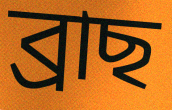
ব্ৰাছ